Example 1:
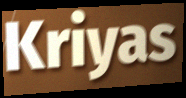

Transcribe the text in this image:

Kriyas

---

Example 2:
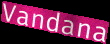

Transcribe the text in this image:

Vandana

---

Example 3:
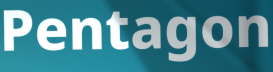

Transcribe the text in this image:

Pentagon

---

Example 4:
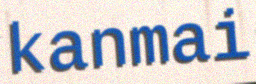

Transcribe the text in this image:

kanmai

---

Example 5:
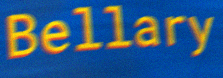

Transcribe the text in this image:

Bellary